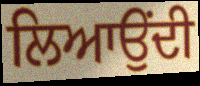
ਲਿਆਉਂਦੀ